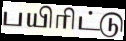
பயிரிட்டு